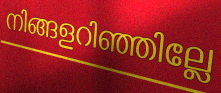
നിങ്ങളറിഞ്ഞില്ലേ